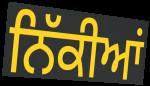
ਨਿੱਕੀਆਂ